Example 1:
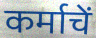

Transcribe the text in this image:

कर्माचें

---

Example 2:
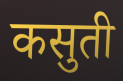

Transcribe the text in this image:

कसुती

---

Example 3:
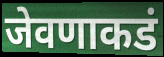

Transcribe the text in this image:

जेवणाकडं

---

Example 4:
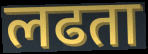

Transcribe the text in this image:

लढता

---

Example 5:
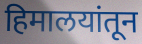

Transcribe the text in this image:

हिमालयांतून